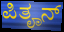
ಪಿತೄನ್